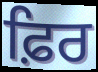
ਫ਼ਿਰ